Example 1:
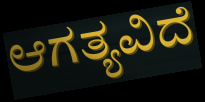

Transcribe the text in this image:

ಆಗತ್ಯವಿದೆ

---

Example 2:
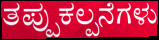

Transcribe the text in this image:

ತಪ್ಪುಕಲ್ಪನೆಗಳು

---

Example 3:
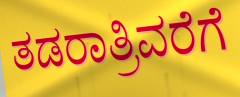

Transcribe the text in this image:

ತಡರಾತ್ರಿವರೆಗೆ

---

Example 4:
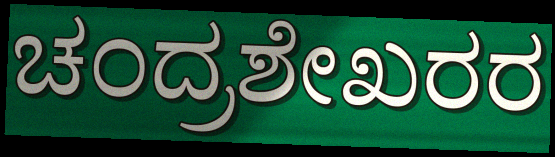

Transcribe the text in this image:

ಚಂದ್ರಶೇಖರರ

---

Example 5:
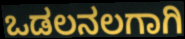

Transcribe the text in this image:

ಒಡಲನಲಗಾಗಿ